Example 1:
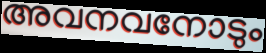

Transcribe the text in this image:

അവനവനോടും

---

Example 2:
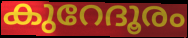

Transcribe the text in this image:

കുറേദൂരം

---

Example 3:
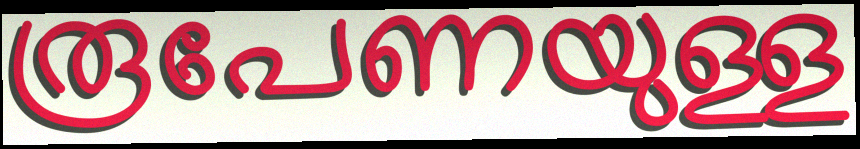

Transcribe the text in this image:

രൂപേണയുള്ള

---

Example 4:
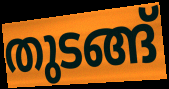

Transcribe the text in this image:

തുടങ്ങ്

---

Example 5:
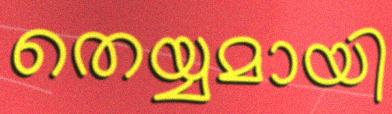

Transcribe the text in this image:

തെയ്യമായി